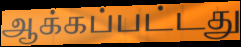
ஆக்கப்பட்டது